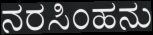
ನರಸಿಂಹನು